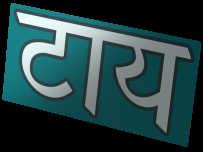
टाय